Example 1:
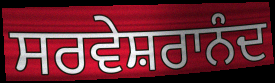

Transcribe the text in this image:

ਸਰਵੇਸ਼ਰਾਨੰਦ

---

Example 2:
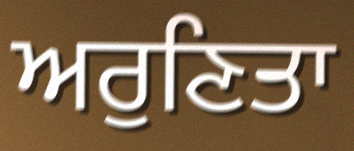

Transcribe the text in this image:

ਅਰੁਣਿਤਾ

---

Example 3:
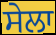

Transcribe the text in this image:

ਸੇਲਾ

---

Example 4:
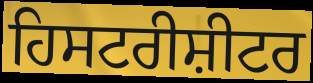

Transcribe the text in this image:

ਹਿਸਟਰੀਸ਼ੀਟਰ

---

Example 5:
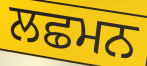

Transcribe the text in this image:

ਲਛਮਨ